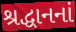
શ્રદ્ધાનનાં